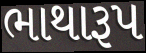
ભાથારૂપ